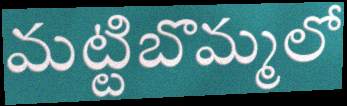
మట్టిబొమ్మలో